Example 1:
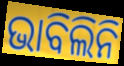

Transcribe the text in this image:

ଭାବିଲିନି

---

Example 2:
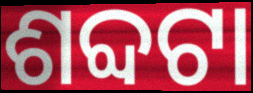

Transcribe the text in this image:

ଶବ୍ଦଟା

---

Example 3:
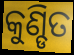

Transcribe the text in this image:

କୁଣ୍ଡିତ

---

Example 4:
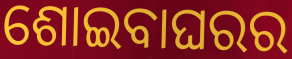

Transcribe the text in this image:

ଶୋଇବାଘରର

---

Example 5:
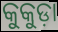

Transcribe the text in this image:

କୁକୁଡ଼ା